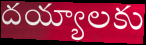
దయ్యాలకు